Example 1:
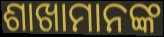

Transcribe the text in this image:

ଶାଖାମାନଙ୍କ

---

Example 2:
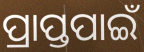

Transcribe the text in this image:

ପ୍ରାପ୍ତପାଇଁ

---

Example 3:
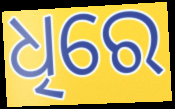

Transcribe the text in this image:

ଧିରେ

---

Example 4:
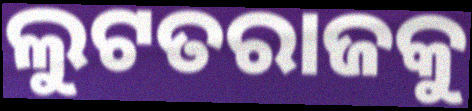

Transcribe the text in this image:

ଲୁଟତରାଜକୁ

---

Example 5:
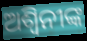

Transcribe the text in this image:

ଅଶ୍ୱିନୀଙ୍କ